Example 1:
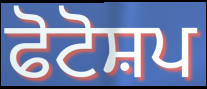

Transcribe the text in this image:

ਫੋਟੋਸ਼ਪ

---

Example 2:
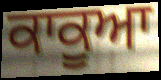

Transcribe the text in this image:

ਕਾਕੂਆ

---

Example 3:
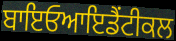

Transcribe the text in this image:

ਬਾਇਓਆਇਡੈਂਟੀਕਲ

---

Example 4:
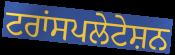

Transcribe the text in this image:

ਟਰਾਂਸਪਲੇਟੇਸ਼ਨ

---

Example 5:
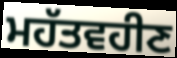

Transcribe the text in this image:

ਮਹੱਤਵਹੀਣ